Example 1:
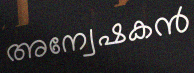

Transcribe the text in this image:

അന്വേഷകൻ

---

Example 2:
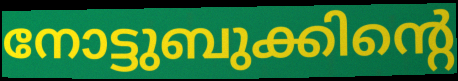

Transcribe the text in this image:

നോട്ടുബുക്കിന്റെ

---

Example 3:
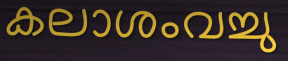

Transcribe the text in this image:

കലാശംവച്ചു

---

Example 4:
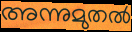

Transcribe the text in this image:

അന്നുമുതൽ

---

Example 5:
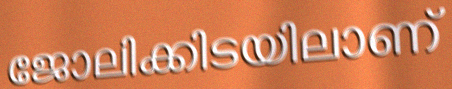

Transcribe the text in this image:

ജോലിക്കിടയിലാണ്